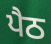
ਪੈਠ